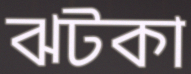
ঝটকা